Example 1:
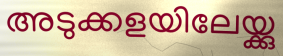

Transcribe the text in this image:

അടുക്കളയിലേയ്ക്കു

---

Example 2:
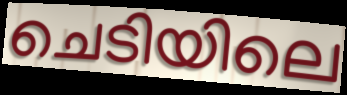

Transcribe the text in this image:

ചെടിയിലെ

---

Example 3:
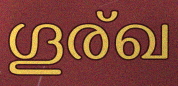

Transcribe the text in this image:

ഗൂര്ഖ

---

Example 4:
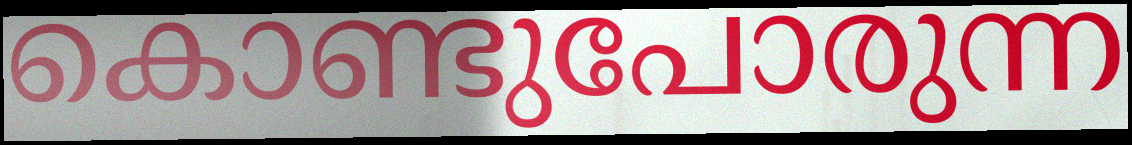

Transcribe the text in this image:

കൊണ്ടുപോരുന്ന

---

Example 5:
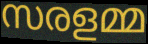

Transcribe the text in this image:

സരളമ്മ